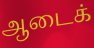
ஆடைக்